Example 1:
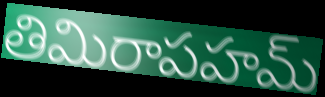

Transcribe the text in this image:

తిమిరాపహమ్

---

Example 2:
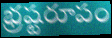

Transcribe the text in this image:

భ్రష్టరూపం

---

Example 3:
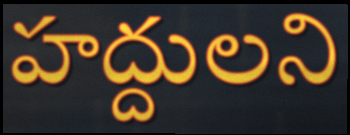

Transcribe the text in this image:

హద్దులని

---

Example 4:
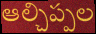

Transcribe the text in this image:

ఆల్చిప్పల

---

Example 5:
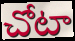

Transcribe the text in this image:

చోటా